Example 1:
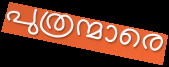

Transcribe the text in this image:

പുത്രന്മാരെ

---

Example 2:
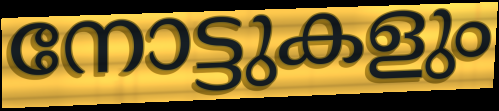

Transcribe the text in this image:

നോട്ടുകളും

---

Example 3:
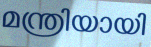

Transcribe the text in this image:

മന്ത്രിയായി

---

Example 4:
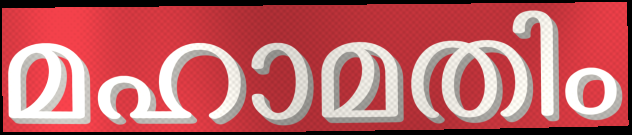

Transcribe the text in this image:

മഹാമതിം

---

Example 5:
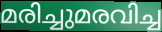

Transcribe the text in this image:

മരിച്ചുമരവിച്ച